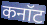
कनॉट